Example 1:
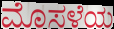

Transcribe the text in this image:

ಮೊಸಳೆಯ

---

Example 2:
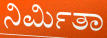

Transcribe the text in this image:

ನಿರ್ಮಿತಾ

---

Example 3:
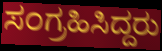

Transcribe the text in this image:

ಸಂಗ್ರಹಿಸಿದ್ದರು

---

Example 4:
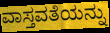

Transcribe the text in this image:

ವಾಸ್ತವತೆಯನ್ನು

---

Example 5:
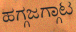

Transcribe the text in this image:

ಹಗ್ಗಜಗ್ಗಾಟ